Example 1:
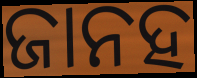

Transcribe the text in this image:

ଜାନହ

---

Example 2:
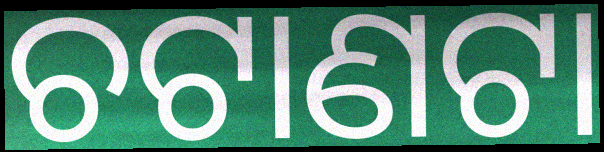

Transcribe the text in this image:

ଚଟାଣଟା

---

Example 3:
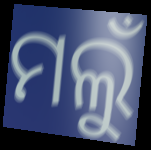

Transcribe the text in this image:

ମଲୁଁ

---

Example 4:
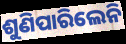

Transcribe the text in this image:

ଶୁଣିପାରିଲେନି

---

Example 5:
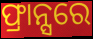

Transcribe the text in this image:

ଫ୍ରାନ୍ସରେ